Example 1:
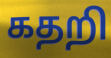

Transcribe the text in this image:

கதறி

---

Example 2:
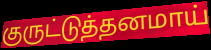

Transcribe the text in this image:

குருட்டுத்தனமாய்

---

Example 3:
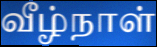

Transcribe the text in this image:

வீழ்நாள்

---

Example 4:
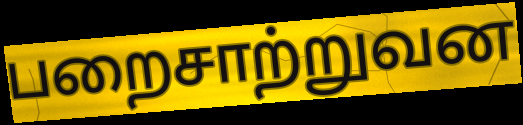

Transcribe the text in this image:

பறைசாற்றுவன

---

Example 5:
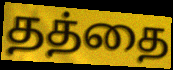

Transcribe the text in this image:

தத்தை